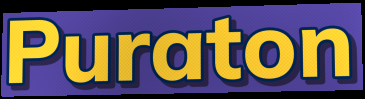
Puraton